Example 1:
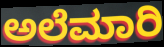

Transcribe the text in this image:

ಅಲೆಮಾರಿ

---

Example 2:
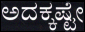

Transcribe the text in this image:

ಅದಕ್ಕಷ್ಟೇ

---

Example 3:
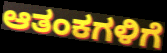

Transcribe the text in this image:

ಆತಂಕಗಳಿಗೆ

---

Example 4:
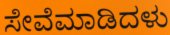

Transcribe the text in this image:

ಸೇವೆಮಾಡಿದಳು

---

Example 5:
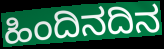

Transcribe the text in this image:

ಹಿಂದಿನದಿನ